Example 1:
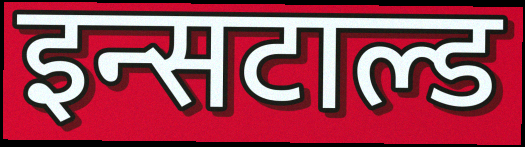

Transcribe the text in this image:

इन्सटाल्ड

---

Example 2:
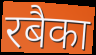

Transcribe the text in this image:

रबैका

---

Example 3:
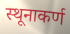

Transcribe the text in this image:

स्थूनाकर्ण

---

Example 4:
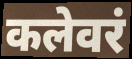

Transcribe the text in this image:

कलेवरं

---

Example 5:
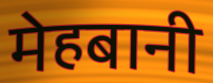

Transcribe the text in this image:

मेहबानी